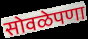
सोवळेपणा